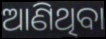
ଆଣିଥିବା